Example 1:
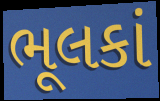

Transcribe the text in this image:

ભૂલકાં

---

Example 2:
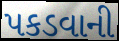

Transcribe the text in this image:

પકડવાની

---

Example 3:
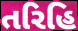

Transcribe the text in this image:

તરિહિ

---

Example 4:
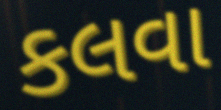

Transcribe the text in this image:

કલવા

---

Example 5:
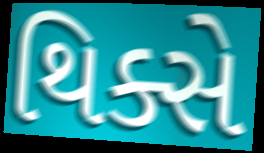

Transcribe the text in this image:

થિક્સે